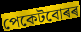
পেকেটবোৰৰ